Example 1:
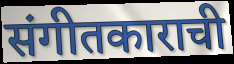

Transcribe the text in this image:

संगीतकाराची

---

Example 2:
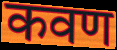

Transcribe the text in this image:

कवण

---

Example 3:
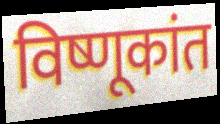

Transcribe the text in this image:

विष्णूकांत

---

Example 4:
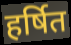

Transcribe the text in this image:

हर्षित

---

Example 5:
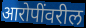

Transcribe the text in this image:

आरोपींवरील